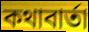
কথাবাৰ্তা